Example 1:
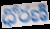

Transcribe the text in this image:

ధోరణి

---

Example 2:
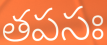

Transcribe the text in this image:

తపసః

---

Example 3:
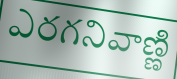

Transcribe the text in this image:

ఎరగనివాణ్ణి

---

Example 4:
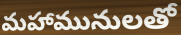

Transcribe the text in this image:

మహామునులతో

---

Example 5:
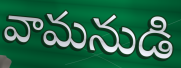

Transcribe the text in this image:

వామనుడి